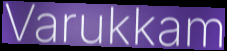
Varukkam